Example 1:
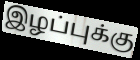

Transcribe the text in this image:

இழப்புக்கு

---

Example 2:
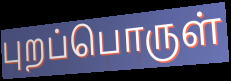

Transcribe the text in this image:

புறப்பொருள்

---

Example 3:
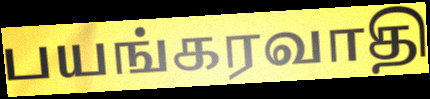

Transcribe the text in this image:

பயங்கரவாதி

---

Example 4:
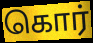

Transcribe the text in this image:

கொர்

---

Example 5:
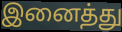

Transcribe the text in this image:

இனைத்து